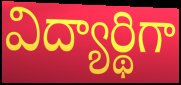
విద్యార్థిగా